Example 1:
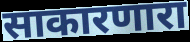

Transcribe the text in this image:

साकारणारा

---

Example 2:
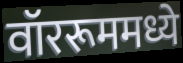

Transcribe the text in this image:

वॉररूममध्ये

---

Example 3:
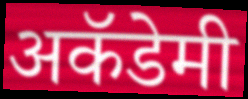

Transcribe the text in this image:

अकॅडेमी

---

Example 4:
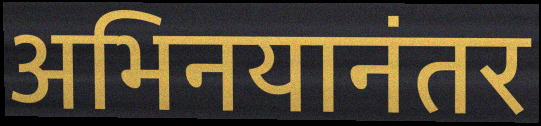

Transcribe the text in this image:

अभिनयानंतर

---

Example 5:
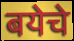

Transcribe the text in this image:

बयेचे